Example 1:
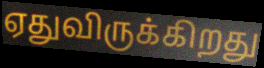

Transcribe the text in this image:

ஏதுவிருக்கிறது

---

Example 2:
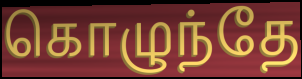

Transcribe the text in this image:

கொழுந்தே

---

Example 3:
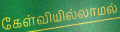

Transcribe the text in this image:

கேள்வியில்லாமல்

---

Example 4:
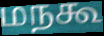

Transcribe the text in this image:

மநகூ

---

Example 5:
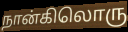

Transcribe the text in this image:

நான்கிலொரு